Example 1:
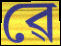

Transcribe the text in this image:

ৱে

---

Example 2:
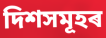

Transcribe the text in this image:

দিশসমূহৰ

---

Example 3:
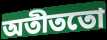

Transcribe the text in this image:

অতীততো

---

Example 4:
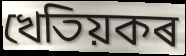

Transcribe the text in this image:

খেতিয়কৰ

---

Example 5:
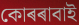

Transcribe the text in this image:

কোৰৰাবাই